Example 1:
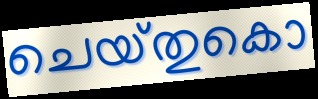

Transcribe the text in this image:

ചെയ്‌തുകൊ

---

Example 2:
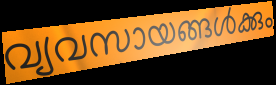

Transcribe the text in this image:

വ്യവസായങ്ങൾക്കും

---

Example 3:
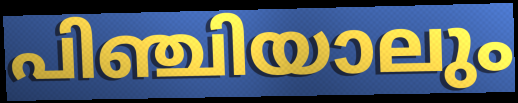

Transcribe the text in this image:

പിഞ്ചിയാലും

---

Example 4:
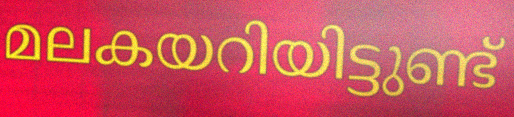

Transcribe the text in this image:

മലകയറിയിട്ടുണ്ട്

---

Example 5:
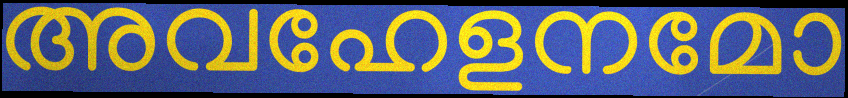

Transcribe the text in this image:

അവഹേളനമോ